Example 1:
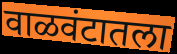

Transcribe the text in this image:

वाळवंटातला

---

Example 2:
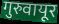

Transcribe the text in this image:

गुरुवायूर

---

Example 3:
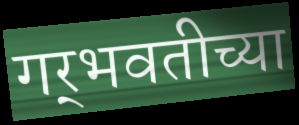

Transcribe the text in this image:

गर्भवतीच्या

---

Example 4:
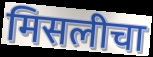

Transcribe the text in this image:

मिसलीचा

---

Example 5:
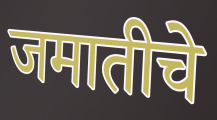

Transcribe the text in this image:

जमातीचे